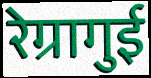
रेग्रागुई